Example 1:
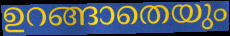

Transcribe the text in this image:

ഉറങ്ങാതെയും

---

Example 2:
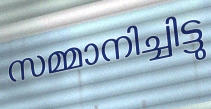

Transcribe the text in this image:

സമ്മാനിച്ചിട്ടു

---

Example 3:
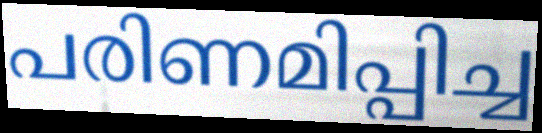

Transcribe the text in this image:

പരിണമിപ്പിച്ച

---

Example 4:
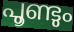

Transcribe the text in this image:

പൂണ്ടും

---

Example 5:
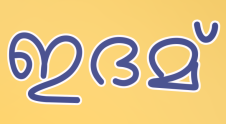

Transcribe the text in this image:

ഇദമ്